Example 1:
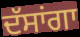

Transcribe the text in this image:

ਦੱਸਾਂਗਾ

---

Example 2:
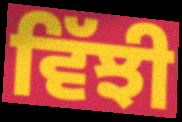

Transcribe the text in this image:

ਵਿੱਝੀ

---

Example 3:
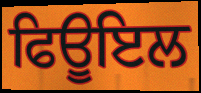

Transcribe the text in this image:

ਫਿਊਇਲ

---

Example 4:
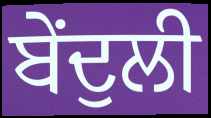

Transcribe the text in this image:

ਬੇਂਦੁਲੀ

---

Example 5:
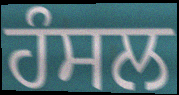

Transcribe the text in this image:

ਹੰਸਲ